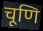
चूणि